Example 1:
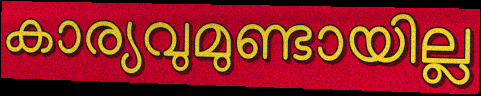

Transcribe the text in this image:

കാര്യവുമുണ്ടായില്ല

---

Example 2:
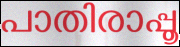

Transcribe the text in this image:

പാതിരാപ്പൂ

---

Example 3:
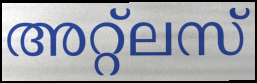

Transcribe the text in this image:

അറ്റ്ലസ്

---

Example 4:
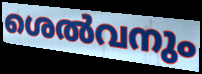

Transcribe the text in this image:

ശെൽവനും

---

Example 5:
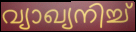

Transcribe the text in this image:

വ്യാഖ്യനിച്ച്